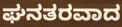
ಘನತರವಾದ